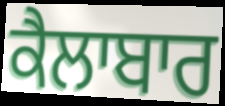
ਕੈਲਾਬਾਰ